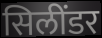
सिलींडर